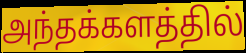
அந்தக்களத்தில்